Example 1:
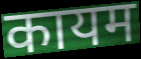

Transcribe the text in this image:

कायम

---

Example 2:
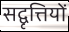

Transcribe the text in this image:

सद्वृत्तियों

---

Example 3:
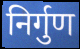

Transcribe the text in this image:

निर्गुण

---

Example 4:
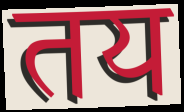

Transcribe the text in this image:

तय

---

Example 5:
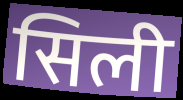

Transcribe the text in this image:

सिली